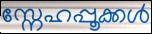
സ്നേഹപ്പൂക്കൾ